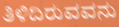
ತಿಳಿದಿರುವವನು